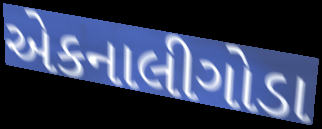
એકનાલીગોડા